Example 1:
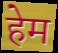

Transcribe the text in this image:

हेम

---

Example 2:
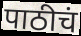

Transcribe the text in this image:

पाठीचं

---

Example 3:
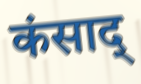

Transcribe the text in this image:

कंसाद्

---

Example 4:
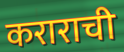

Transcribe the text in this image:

कराराची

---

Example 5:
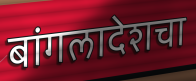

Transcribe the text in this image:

बांगलादेशचा